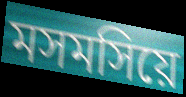
মসমসিয়ে